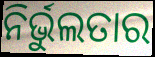
ନିର୍ଭୁଲତାର